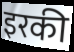
इरकी